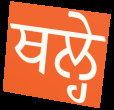
ਥਲ੍ਹੇ